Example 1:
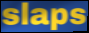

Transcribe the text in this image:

slaps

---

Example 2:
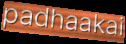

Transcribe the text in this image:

padhaakai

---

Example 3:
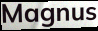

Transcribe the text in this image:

Magnus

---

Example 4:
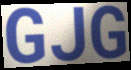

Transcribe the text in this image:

GJG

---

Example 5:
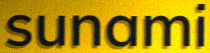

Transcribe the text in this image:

sunami